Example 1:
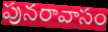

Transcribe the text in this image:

పునరావాసం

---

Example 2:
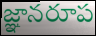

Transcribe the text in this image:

జ్ఞానరూప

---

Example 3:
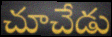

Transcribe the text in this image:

చూచేడు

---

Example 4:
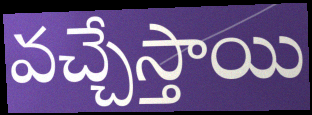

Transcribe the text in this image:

వచ్చేస్తాయి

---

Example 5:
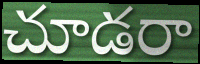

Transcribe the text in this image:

చూడరా